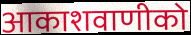
आकाशवाणीको